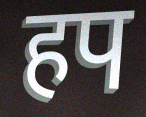
हप